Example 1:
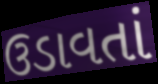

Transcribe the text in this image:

ઉડાવતાં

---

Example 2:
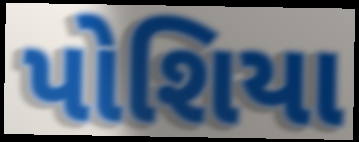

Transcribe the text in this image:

પોશિયા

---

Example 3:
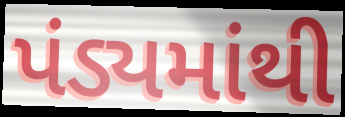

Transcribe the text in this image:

પંડ્યમાંથી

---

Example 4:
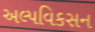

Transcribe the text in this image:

અલ્પવિકસન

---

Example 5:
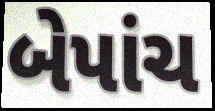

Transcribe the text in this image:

બેપાંચ